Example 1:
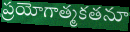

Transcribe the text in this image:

ప్రయోగాత్మకతనూ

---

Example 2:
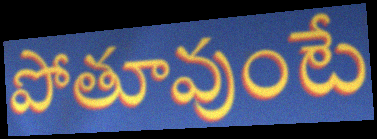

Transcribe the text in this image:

పోతూవుంటే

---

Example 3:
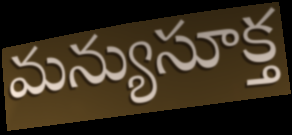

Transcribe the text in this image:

మన్యుసూక్త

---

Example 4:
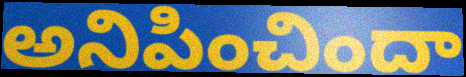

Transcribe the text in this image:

అనిపించిందా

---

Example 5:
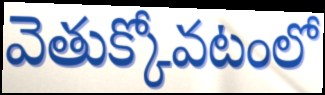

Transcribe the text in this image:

వెతుక్కోవటంలో